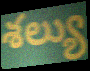
శల్యు